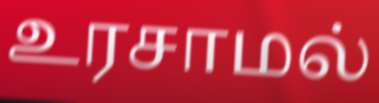
உரசாமல்